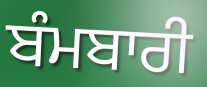
ਬੰਮਬਾਰੀ